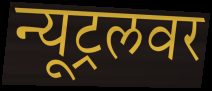
न्यूट्रलवर